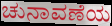
ಚುನಾವಣೆಯ